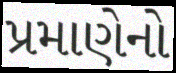
પ્રમાણેનો